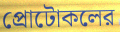
প্রোটোকলের